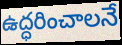
ఉద్ధరించాలనే